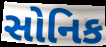
સોનિક